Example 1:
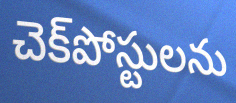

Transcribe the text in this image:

చెక్‌పోస్టులను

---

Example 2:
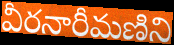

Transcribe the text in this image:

వీరనారీమణిని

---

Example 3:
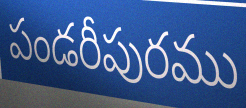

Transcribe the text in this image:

పండరీపురము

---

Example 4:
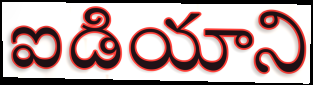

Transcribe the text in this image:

ఐడియాని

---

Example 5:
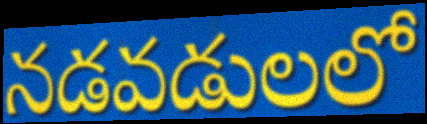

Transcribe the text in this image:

నడవడులలో